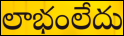
లాభంలేదు